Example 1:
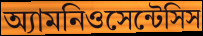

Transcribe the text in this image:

অ্যামনিওসেন্টেসিস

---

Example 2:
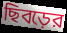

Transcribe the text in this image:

ছিবড়ের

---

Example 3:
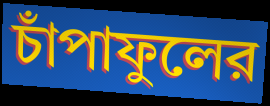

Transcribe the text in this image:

চাঁপাফুলের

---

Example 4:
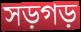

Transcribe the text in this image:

সড়গড়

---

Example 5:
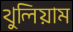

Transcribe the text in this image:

থুলিয়াম